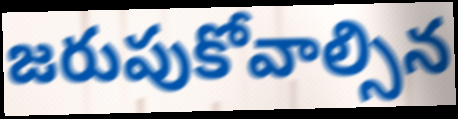
జరుపుకోవాల్సిన